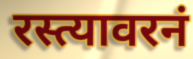
रस्त्यावरनं